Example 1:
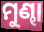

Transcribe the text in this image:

ମୁଣ୍ଢା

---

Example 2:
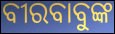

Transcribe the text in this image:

ବୀରବାବୁଙ୍କ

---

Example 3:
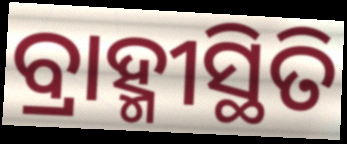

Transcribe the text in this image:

ବ୍ରାହ୍ମୀସ୍ଥିତି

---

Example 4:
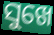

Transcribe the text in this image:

ସୁଖେ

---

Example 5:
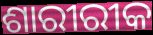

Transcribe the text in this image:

ଶାରୀରୀକ